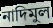
নাদিমুল